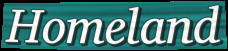
Homeland